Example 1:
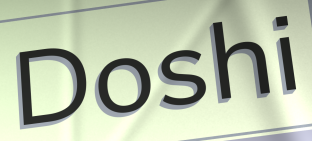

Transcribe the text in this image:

Doshi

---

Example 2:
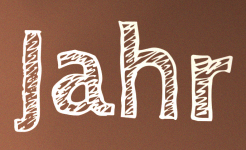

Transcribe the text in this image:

Jahr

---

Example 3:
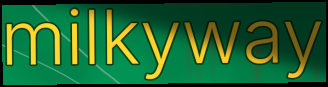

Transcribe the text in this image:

milkyway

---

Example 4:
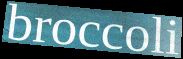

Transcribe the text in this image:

broccoli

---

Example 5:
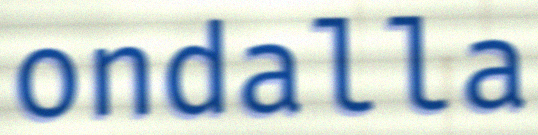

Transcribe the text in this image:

ondalla